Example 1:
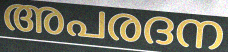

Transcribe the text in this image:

അപരദന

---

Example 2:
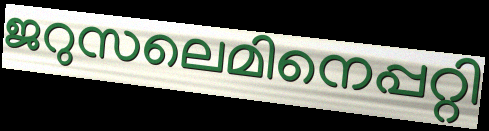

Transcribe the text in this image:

ജറുസലെമിനെപ്പറ്റി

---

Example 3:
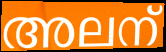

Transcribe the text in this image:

അലന്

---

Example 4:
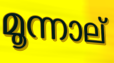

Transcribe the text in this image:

മൂന്നാല്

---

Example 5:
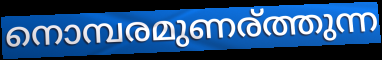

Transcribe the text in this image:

നൊമ്പരമുണര്ത്തുന്ന